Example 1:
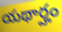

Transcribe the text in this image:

యథార్హం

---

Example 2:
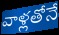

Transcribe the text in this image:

వాళ్లతోనే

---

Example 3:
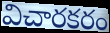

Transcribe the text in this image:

విచారకరం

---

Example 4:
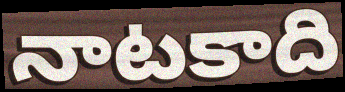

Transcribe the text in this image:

నాటకాది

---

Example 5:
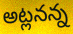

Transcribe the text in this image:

అట్లనన్న